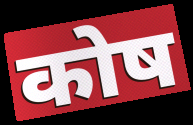
कोष